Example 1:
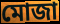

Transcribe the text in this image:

মোজা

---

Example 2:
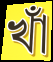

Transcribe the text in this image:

খাঁ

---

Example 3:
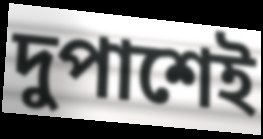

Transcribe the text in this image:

দুপাশেই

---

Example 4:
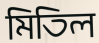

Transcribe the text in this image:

মিতিল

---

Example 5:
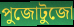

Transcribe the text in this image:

পুজোটুজো